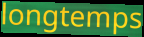
longtemps